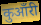
कुआँरी